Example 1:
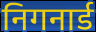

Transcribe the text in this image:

निगनार्ड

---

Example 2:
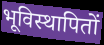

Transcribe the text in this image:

भूविस्थापितों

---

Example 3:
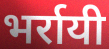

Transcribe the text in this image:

भर्रायी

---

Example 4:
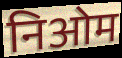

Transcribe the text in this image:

निओम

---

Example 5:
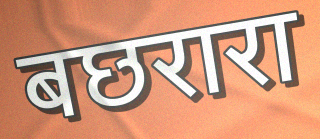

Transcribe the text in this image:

बछरारा